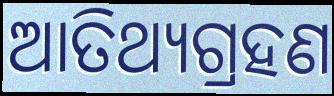
ଆତିଥ୍ୟଗ୍ରହଣ